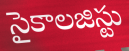
సైకాలజిస్టు